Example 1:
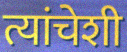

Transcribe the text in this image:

त्यांचेशी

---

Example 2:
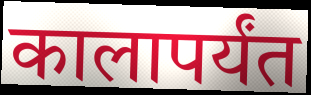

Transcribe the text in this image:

कालापर्यंत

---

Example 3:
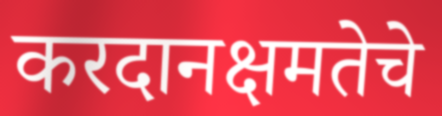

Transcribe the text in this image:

करदानक्षमतेचे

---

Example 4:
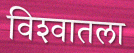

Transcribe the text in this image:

विश्‍वातला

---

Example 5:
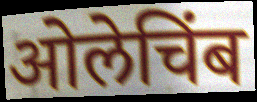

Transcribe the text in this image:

ओलेचिंब